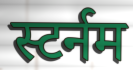
स्टर्नम